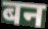
बन